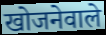
खोजनेवाले